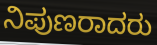
ನಿಪುಣರಾದರು